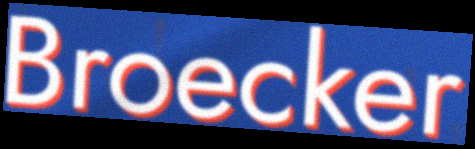
Broecker